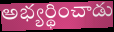
అభ్యర్థించాడు